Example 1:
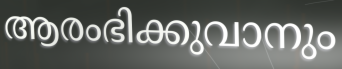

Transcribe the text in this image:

ആരംഭിക്കുവാനും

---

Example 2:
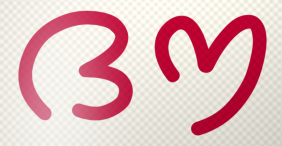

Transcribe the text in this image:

ദൗ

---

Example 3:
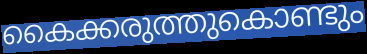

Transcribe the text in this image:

കൈക്കരുത്തുകൊണ്ടും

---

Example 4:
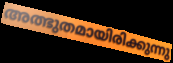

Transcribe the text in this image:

അത്ഭുതമായിരിക്കുന്നു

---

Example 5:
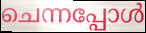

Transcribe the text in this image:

ചെന്നപ്പോൾ